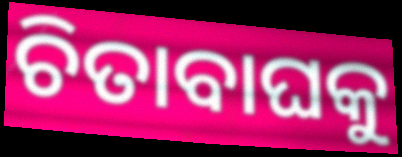
ଚିତାବାଘକୁ